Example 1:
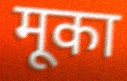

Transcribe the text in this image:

मूका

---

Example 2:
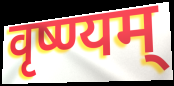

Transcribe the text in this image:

वृष्ण्यम्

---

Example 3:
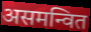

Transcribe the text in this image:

असमन्वित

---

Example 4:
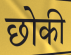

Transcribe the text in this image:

छोकी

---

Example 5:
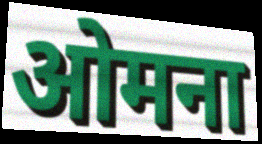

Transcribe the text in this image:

ओमना